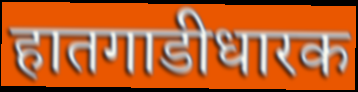
हातगाडीधारक